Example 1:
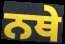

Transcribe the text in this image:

ਨਥੇ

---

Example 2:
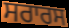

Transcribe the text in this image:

ਸਰਾਰਸ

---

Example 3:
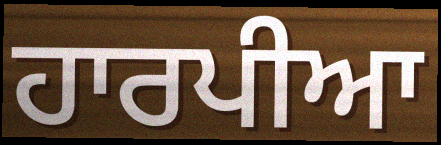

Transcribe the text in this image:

ਹਾਰਪੀਆ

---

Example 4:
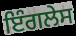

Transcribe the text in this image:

ਇੰਗਲੇਸ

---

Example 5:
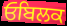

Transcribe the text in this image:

ਓਬਿਲਕ